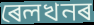
ৰেলখনৰ